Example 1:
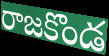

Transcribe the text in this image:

రాజకొండ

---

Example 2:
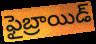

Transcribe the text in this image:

ఫైబ్రాయిడ్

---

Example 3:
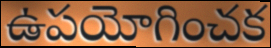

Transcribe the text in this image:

ఉపయోగించక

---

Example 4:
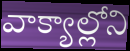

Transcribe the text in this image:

వాక్యాల్లోని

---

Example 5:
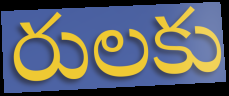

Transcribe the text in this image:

రులకు